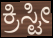
ಕ್ರಿಸ್ಟೀ